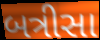
બત્રીસા